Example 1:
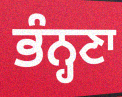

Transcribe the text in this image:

ਭੰਨ੍ਹਣਾ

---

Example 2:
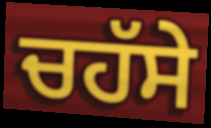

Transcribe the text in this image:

ਚਹੱਸੇ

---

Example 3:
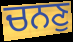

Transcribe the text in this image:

ਚਨਣੁ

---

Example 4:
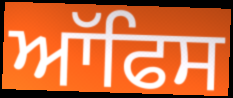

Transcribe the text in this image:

ਆੱਫਿਸ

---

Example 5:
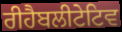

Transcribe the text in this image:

ਰੀਹੈਬਲੀਟੇਟਿਵ